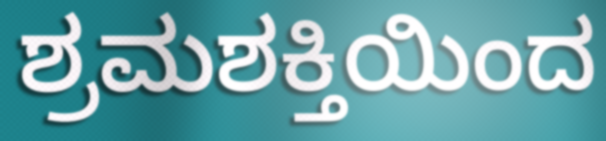
ಶ್ರಮಶಕ್ತಿಯಿಂದ